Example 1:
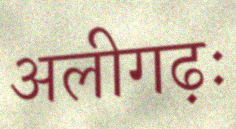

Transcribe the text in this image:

अलीगढ़ः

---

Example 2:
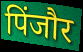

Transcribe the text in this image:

पिंजौर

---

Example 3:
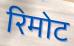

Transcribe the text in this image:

रिमोट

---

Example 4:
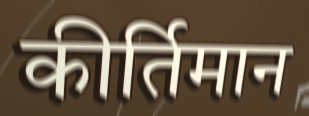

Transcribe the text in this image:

कीर्तिमान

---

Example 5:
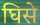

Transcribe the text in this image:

घिसे